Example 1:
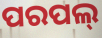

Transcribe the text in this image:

ପରପଲ୍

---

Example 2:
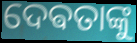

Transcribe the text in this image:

ଦେଵତାଙ୍କୁ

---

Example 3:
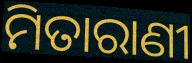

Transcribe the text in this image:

ମିତାରାଣୀ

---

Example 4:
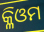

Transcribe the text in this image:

କ୍ଳିଓମ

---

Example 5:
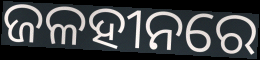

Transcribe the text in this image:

ଜଳହୀନରେ